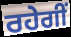
ਰਹੇਗੀਂ